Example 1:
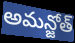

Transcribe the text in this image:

అమన్జోత్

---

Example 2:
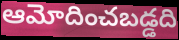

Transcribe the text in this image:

ఆమోదించబడ్డది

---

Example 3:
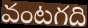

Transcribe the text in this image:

వంటగది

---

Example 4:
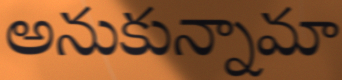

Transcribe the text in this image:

అనుకున్నామా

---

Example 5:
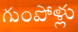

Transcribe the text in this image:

గుంపోళ్లు